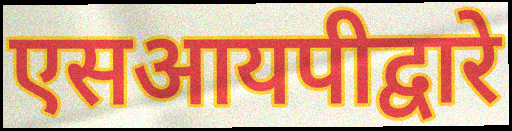
एसआयपीद्वारे